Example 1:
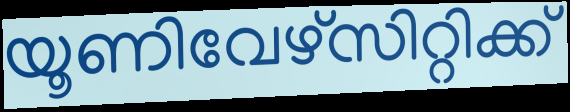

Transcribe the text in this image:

യൂണിവേഴ്സിറ്റിക്ക്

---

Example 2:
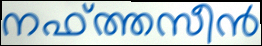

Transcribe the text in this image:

നഫ്ത്തസീൻ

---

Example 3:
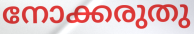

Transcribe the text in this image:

നോക്കരുതു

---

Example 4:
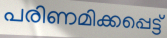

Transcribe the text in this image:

പരിണമിക്കപ്പെട്ട്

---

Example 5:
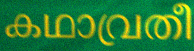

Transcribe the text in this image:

കഥാവ്രതീ